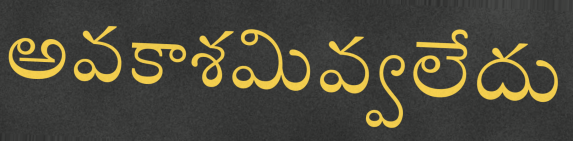
అవకాశమివ్వలేదు